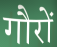
गौरों